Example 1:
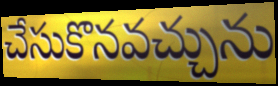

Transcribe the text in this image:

చేసుకొనవచ్చును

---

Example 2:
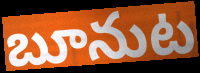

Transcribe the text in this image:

బూనుట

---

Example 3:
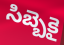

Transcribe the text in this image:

సిబ్బెకై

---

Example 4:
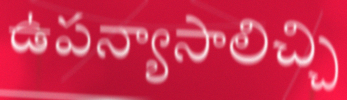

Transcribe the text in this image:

ఉపన్యాసాలిచ్చి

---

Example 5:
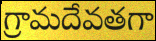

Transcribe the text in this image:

గ్రామదేవతగా